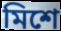
মিশে